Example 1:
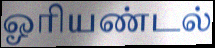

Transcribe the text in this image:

ஓரியண்டல்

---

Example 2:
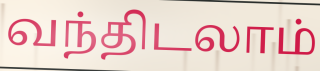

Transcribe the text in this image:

வந்திடலாம்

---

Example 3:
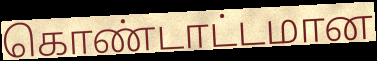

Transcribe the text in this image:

கொண்டாட்டமான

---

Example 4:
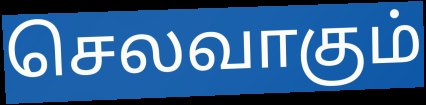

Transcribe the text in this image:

செலவாகும்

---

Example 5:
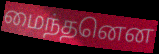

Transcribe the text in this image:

மைந்தனென